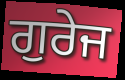
ਗੁਰੇਜ